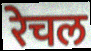
रेचल